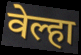
वेल्हा